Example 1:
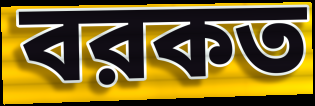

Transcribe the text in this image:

বরকত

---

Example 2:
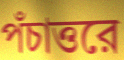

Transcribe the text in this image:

পঁচাত্তরে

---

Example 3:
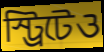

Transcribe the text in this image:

স্ট্রিটেও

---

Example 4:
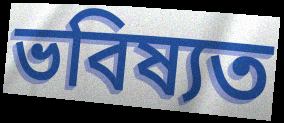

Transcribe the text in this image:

ভবিষ্যত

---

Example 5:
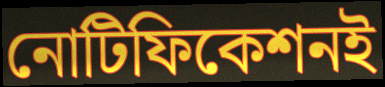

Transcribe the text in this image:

নোটিফিকেশনই